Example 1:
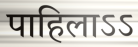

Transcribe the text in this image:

पाहिलाऽऽ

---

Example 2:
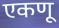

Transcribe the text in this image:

एकणू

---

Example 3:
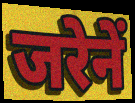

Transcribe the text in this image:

जरेनें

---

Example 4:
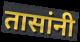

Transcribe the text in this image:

तासांनी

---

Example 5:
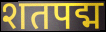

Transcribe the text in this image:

शतपद्म